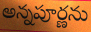
అన్నపూర్ణను